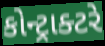
કોન્ટ્રાક્ટરે